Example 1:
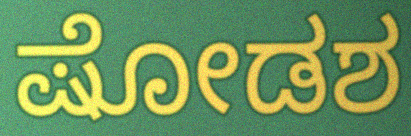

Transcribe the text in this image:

ಷೋಡಶ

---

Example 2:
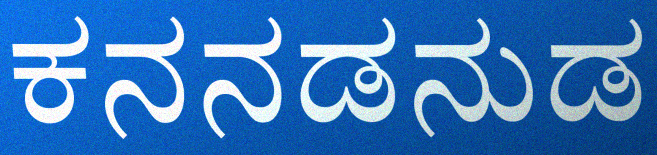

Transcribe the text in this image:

ಕನನಡನುಡ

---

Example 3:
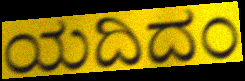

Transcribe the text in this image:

ಯದಿದಂ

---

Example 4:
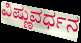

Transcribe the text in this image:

ವಿಷ್ಣುವರ್ಧನ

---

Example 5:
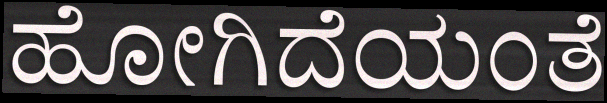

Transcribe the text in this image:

ಹೋಗಿದೆಯಂತೆ